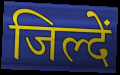
जिल्दें